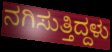
ನಗಿಸುತ್ತಿದ್ದಳು